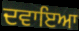
ਦਵਾਇਆ